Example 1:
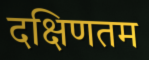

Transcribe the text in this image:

दक्षिणतम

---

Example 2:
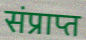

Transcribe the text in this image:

संप्राप्त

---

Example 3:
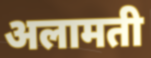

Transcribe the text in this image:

अलामती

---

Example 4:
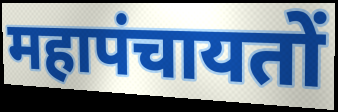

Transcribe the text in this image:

महापंचायतों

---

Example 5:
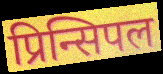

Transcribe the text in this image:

प्रिन्सिपल